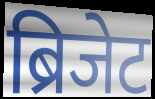
ब्रिजेट